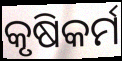
କୃଷିକର୍ମ